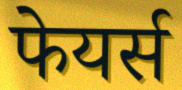
फेयर्स